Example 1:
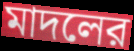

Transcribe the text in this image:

মাদলের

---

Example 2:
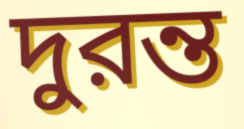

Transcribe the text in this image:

দুরন্ত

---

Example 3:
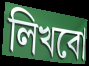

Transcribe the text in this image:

লিখবো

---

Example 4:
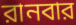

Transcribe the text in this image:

রানবার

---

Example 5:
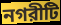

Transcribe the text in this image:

নগরীটি